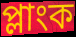
প্লাংক